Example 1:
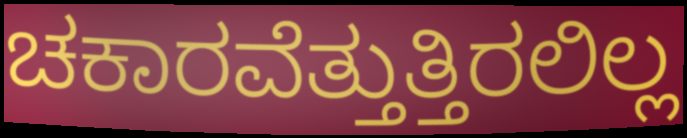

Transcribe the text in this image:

ಚಕಾರವೆತ್ತುತ್ತಿರಲಿಲ್ಲ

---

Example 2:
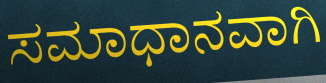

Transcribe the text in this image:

ಸಮಾಧಾನವಾಗಿ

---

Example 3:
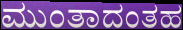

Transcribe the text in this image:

ಮುಂತಾದಂತಹ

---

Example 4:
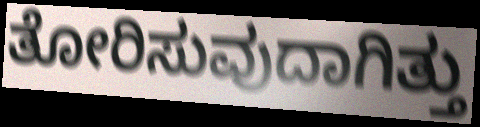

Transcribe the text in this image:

ತೋರಿಸುವುದಾಗಿತ್ತು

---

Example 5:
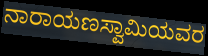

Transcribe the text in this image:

ನಾರಾಯಣಸ್ವಾಮಿಯವರ